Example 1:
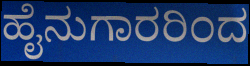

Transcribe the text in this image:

ಹೈನುಗಾರರಿಂದ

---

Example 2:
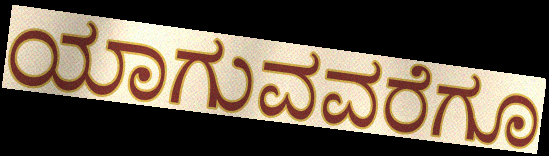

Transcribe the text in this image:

ಯಾಗುವವರೆಗೂ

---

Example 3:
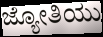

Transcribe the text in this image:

ಜ್ಯೋತಿಯು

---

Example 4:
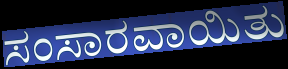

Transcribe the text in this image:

ಸಂಸಾರವಾಯಿತು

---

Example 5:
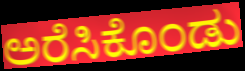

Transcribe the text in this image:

ಅರೆಸಿಕೊಂಡು